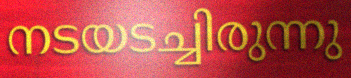
നടയടച്ചിരുന്നു